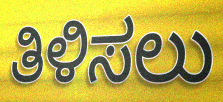
ತಿಳಿಸಲು